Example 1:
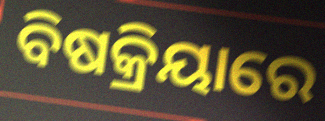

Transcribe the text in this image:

ବିଷକ୍ରିୟାରେ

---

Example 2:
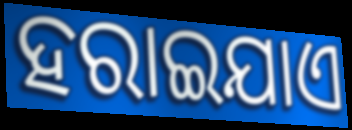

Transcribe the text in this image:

ହରାଇଯାଏ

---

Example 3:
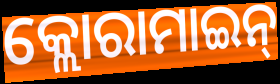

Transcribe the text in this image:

କ୍ଲୋରାମାଇନ୍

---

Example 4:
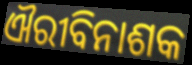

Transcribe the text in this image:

ଐରୀବିନାଶକ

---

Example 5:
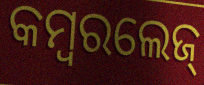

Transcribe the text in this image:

କମ୍ବରଲେଜ୍